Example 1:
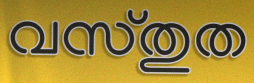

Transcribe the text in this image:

വസ്തുത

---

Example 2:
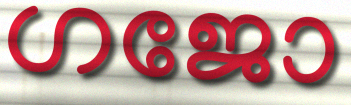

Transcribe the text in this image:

ഗജോ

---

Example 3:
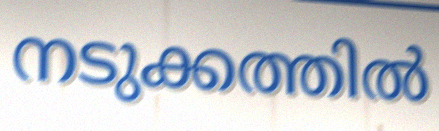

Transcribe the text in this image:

നടുക്കത്തിൽ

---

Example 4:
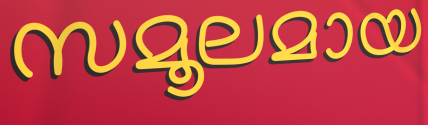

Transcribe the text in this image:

സമൂലമായ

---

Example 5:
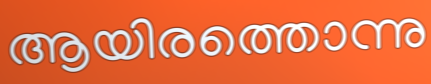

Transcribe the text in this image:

ആയിരത്തൊന്നു